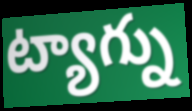
ట్యాగ్ను